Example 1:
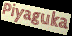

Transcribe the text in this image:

Piyaguka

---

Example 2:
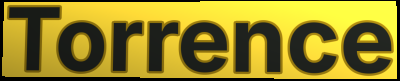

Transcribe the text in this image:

Torrence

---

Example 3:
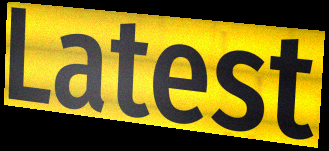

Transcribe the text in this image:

Latest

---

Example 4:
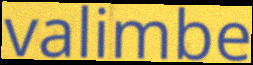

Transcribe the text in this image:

valimbe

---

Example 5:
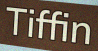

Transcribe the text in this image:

Tiffin